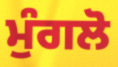
ਮੁੰਗਲੋ